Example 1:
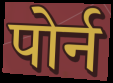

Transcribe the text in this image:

पोर्न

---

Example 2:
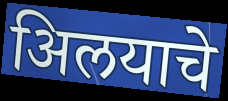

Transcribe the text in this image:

अिलयाचे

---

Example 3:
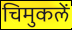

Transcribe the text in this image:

चिमुकलें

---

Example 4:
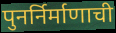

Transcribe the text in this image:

पुनर्निर्माणाची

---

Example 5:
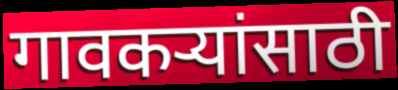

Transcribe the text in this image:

गावकऱ्यांसाठी